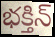
భక్తిన్